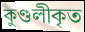
কুণ্ডলীকৃত